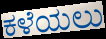
ಕಳೆಯಲು